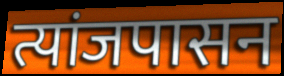
त्यांजपासन